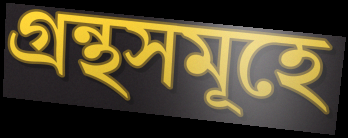
গ্ৰন্থসমূহে